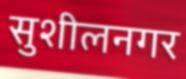
सुशीलनगर